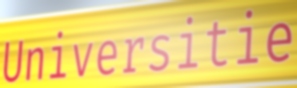
Universitie